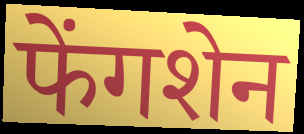
फेंगशेन